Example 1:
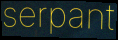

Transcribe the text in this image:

serpant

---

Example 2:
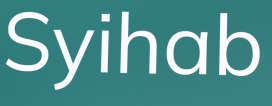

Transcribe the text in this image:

Syihab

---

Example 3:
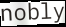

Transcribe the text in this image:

nobly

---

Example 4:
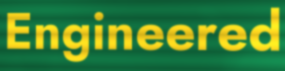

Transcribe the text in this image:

Engineered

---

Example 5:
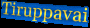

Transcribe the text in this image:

Tiruppavai